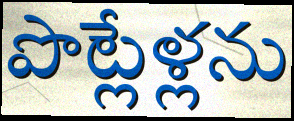
పొట్లేళ్లను